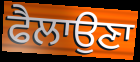
ਫੈਲਾਉਣਾ